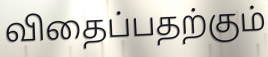
விதைப்பதற்கும்